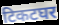
टिकटघर